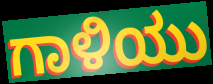
ಗಾಳಿಯು